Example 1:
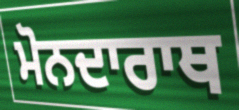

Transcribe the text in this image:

ਮੋਨਦਾਰਾਥ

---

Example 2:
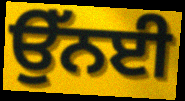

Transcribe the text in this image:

ਉੱਨਈ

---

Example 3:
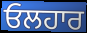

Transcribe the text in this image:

ਓਲਹਾਰ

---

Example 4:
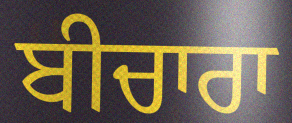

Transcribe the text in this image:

ਬੀਚਾਰਾ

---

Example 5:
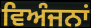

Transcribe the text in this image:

ਵਿਅੰਜਨਾਂ